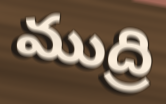
ముద్రి